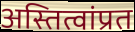
अस्तित्वांप्रत